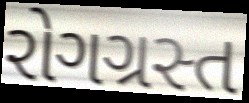
રોગગ્રસ્ત